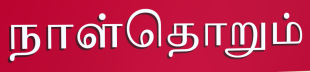
நாள்தொறும்